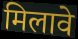
मिलावे